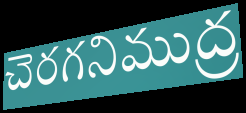
చెరగనిముద్ర